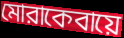
মোরাকেবায়ে